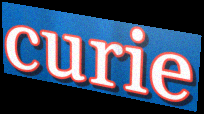
curie